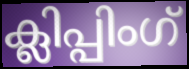
ക്ലിപ്പിംഗ്